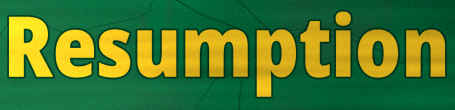
Resumption